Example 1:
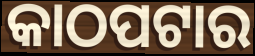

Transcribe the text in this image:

କାଠପଟାର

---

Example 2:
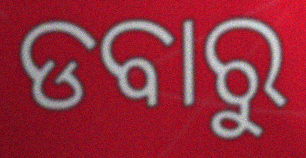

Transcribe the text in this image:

ଡବାରୁ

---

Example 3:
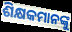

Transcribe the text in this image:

ଶିକ୍ଷକମାନଙ୍କୁ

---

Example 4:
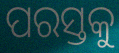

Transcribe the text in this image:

ପରସ୍ତକୁ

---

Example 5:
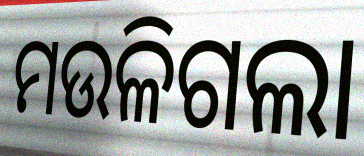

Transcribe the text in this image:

ମଉଳିଗଲା